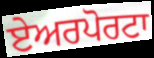
ਏਅਰਪੋਰਟਾ